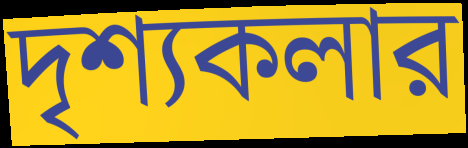
দৃশ্যকলার